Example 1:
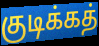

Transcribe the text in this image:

குடிக்கத்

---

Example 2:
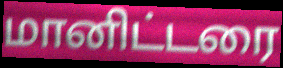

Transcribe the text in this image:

மானிட்டரை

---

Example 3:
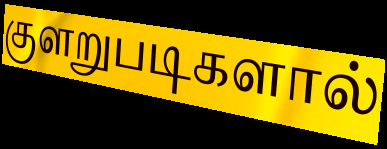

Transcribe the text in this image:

குளறுபடிகளால்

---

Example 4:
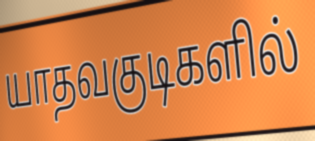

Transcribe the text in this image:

யாதவகுடிகளில்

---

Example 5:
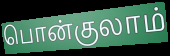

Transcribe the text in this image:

பொன்குலாம்